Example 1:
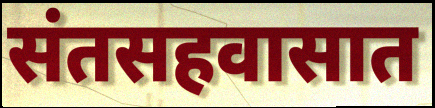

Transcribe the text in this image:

संतसहवासात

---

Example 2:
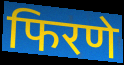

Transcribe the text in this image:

फिरणे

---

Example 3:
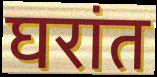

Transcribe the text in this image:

घरांत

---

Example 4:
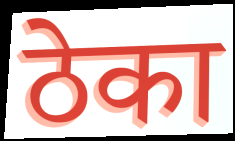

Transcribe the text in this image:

ठेका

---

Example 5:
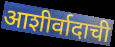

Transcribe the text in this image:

आशीर्वादाची